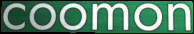
coomon